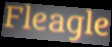
Fleagle